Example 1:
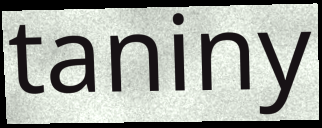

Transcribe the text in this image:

taniny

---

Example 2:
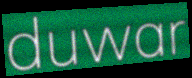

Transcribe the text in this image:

duwar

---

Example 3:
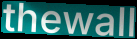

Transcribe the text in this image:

thewall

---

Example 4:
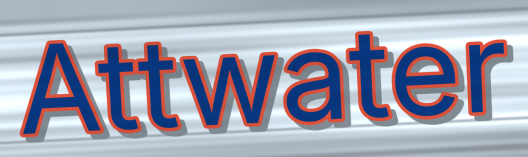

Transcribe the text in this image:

Attwater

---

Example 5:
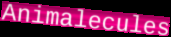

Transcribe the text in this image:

Animalecules